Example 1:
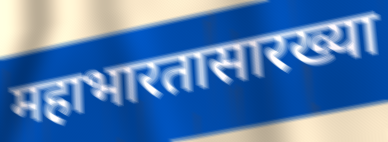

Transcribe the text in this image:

महाभारतासारख्या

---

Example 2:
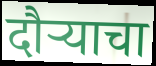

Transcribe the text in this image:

दौऱ्याचा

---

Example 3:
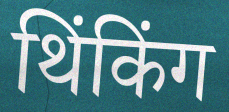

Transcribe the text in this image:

थिंकिंग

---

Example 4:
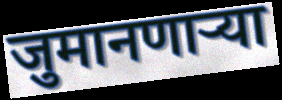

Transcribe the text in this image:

जुमानणार्‍या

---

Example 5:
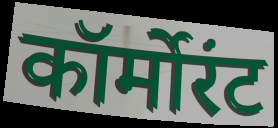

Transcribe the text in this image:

कॉर्मोरंट